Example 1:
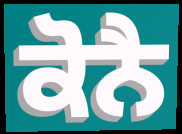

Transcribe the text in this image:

ਕੋਨੈ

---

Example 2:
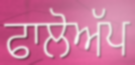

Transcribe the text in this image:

ਫਾਲੋਅੱਪ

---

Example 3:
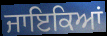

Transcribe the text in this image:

ਜਾਇਕਿਆਂ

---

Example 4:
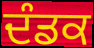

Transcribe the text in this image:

ਦੰਡਕ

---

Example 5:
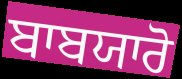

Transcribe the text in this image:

ਬਾਬਯਾਰੋ